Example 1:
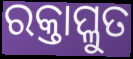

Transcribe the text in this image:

ରକ୍ତାପ୍ଳୁତ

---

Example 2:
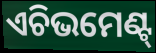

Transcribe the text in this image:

ଏଚିଭମେଣ୍ଟ୍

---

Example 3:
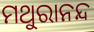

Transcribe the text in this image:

ମଥୁରାନନ୍ଦ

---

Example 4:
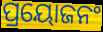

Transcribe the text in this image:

ପ୍ରୟୋଜନଂ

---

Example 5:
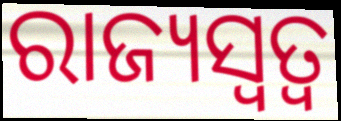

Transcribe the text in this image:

ରାଜ୍ୟସ୍ଵତ୍ଵ